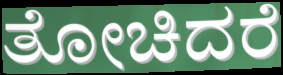
ತೋಚಿದರೆ